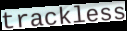
trackless